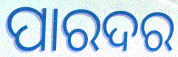
ପାରଦର